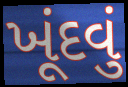
ખૂંદવું